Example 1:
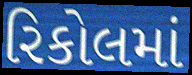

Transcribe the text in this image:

રિકોલમાં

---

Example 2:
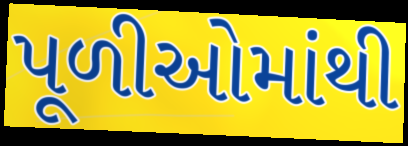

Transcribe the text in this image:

પૂળીઓમાંથી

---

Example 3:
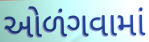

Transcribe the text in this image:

ઓળંગવામાં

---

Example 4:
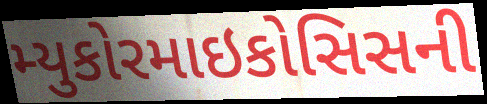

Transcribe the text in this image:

મ્યુકોરમાઇકોસિસની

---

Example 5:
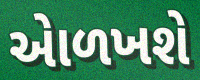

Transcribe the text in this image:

એાળખશે